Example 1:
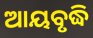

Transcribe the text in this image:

ଆୟବୃଦ୍ଧି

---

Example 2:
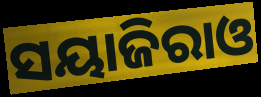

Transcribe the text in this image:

ସୟାଜିରାଓ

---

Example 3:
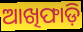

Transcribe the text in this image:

ଆଖିଫାଡ଼ି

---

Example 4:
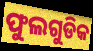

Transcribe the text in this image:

ଫୁଲଗୁଡିକ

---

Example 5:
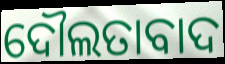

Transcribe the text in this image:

ଦୌଲତାବାଦ